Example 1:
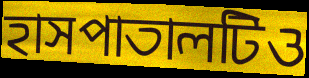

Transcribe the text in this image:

হাসপাতালটিও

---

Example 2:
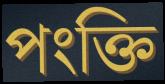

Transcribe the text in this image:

পংক্তি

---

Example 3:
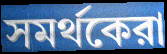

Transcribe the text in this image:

সমর্থকেরা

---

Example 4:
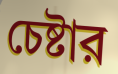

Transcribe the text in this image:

চেষ্টার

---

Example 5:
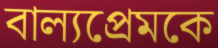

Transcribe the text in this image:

বাল্যপ্রেমকে